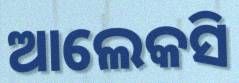
ଆଲେକସି